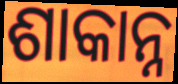
ଶାକାନ୍ନ